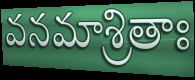
వనమాశ్రితాః